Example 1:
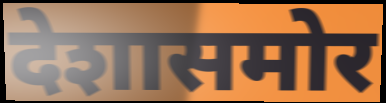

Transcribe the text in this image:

देशासमोर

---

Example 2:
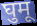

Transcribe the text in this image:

घुमू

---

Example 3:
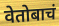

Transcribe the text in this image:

वेतोबाचं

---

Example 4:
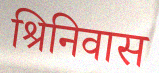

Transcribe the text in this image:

श्रिनिवास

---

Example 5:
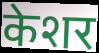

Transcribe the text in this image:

केशर